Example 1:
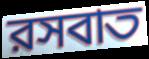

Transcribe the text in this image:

রসবাত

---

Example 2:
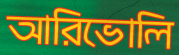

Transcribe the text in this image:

আরিভোলি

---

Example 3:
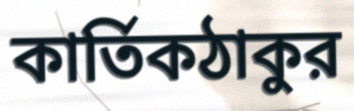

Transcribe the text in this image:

কার্তিকঠাকুর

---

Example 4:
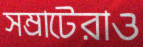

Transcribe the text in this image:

সম্রাটেরাও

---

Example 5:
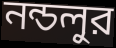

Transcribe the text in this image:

নন্ডলুর